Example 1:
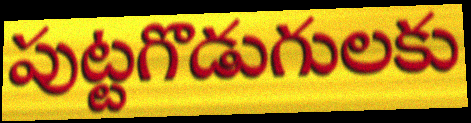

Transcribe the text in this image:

పుట్టగొడుగులకు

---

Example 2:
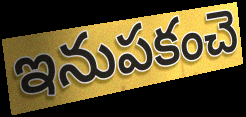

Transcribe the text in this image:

ఇనుపకంచె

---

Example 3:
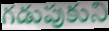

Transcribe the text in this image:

గడుపుకుని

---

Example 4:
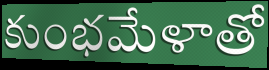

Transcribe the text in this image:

కుంభమేళాతో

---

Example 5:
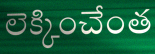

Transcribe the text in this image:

లెక్కించేంత